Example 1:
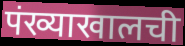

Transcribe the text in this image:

पंख्याखालची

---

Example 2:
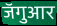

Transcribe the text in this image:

जॅगुआर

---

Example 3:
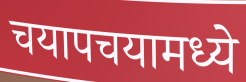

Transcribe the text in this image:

चयापचयामध्ये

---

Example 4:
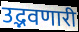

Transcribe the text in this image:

उद्भवणारी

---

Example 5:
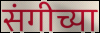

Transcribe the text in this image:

संगीच्या